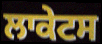
ਲਾਕੇਟਸ